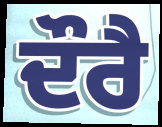
ਦੌਰੈ